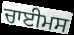
ਚਾਈਮਸ